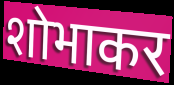
शोभाकर